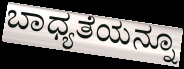
ಬಾಧ್ಯತೆಯನ್ನೂ